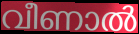
വീണാൽ